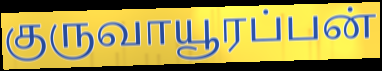
குருவாயூரப்பன்